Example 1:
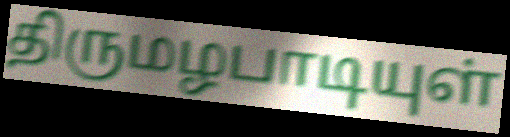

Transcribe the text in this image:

திருமழபாடியுள்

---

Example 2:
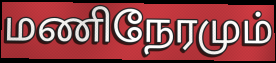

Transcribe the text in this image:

மணிநேரமும்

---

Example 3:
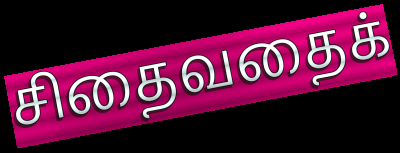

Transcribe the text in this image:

சிதைவதைக்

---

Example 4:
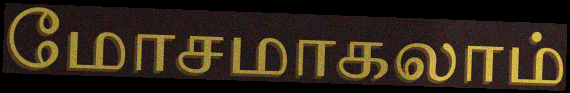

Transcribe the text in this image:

மோசமாகலாம்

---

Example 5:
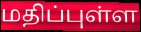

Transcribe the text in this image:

மதிப்புள்ள